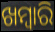
ଖମ୍ୱାରି